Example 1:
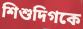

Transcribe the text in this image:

শিশুদিগকে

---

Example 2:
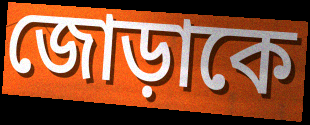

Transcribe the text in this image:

জোড়াকে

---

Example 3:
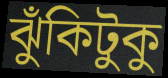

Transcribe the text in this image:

ঝুঁকিটুকু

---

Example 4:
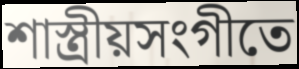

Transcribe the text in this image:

শাস্ত্রীয়সংগীতে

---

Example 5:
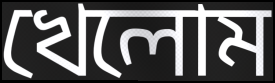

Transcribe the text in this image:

খেলোম